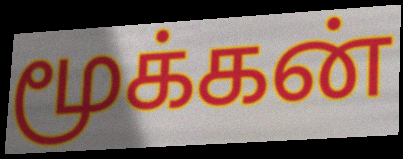
மூக்கன்